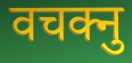
वचक्नु